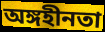
অঙ্গহীনতা